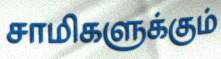
சாமிகளுக்கும்